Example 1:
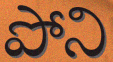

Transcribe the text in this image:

పోని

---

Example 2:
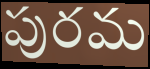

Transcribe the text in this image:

పురమ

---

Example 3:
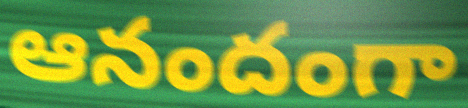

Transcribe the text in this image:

ఆనందంగా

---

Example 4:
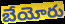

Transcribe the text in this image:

బేయోరు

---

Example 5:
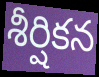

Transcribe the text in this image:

శీర్షికన